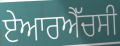
ਏਆਰਐੱਚਸੀ